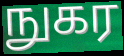
நுகர